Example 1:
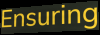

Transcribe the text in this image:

Ensuring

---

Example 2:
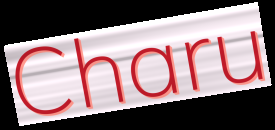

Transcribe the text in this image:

Charu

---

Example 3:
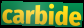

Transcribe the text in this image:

carbide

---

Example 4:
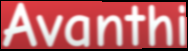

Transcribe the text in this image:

Avanthi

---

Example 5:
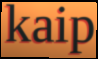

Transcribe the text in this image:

kaip